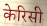
केरिसी